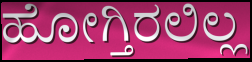
ಹೋಗ್ತಿರಲಿಲ್ಲ